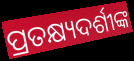
ପ୍ରତକ୍ଷ୍ୟଦର୍ଶୀଙ୍କ